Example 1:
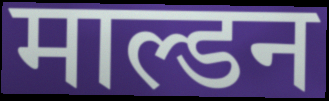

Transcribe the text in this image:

माल्डन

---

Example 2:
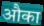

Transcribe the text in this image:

औका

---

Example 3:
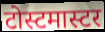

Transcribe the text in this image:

टोस्टमास्टर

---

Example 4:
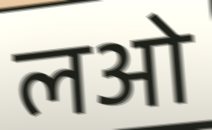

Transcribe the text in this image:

लओ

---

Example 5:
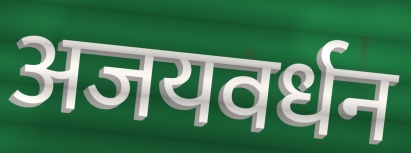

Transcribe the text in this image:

अजयवर्धन